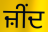
ਜ਼ੀਂਦ